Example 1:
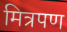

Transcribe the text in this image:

मित्रपण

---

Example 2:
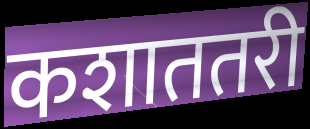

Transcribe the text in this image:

कशाततरी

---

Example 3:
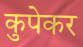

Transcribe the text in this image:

कुपेकर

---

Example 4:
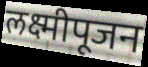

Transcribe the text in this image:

लक्ष्मीपूजन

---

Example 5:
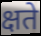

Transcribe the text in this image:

क्षते